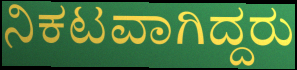
ನಿಕಟವಾಗಿದ್ದರು